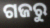
ଗଜରୁ